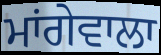
ਮਾਂਗੇਵਾਲਾ